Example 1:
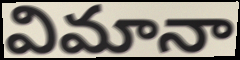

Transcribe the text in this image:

విమానా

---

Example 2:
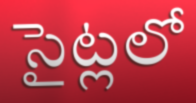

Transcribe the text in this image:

సైట్లలో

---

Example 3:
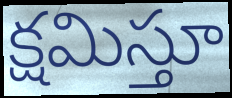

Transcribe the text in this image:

క్షమిస్తూ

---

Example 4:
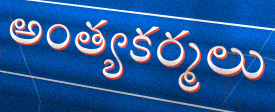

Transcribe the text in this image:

అంత్యకర్మలు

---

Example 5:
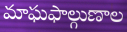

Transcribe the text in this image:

మాఘఫాల్గుణాల